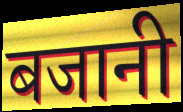
बजानी